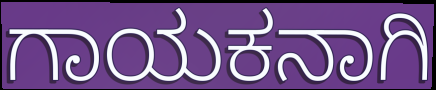
ಗಾಯಕನಾಗಿ